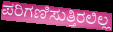
ಪರಿಗಣಿಸುತ್ತಿರಲಿಲ್ಲ